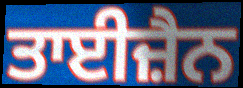
ਤਾਈਜ਼ੈਨ